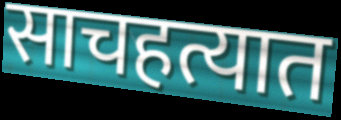
साचहत्यात